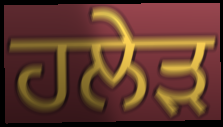
ਹਲੇੜ